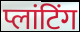
प्लांटिंग